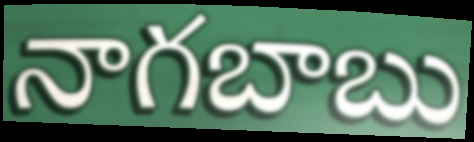
నాగబాబు